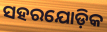
ସହରଯୋଡ଼ିକ